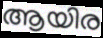
ആയിര